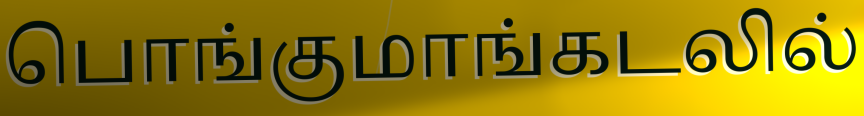
பொங்குமாங்கடலில்